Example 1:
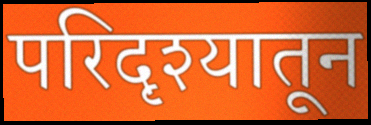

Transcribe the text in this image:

परिदृश्यातून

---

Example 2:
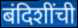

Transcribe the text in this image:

बंदिशींची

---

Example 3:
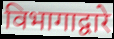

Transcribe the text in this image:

विभागाद्वारे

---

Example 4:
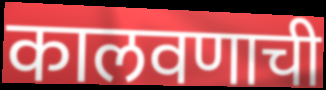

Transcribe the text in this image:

कालवणाची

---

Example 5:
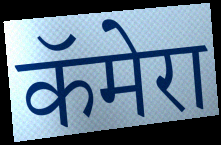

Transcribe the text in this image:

कॅमेरा